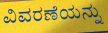
ವಿವರಣೆಯನ್ನು